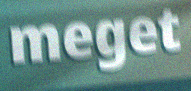
meget